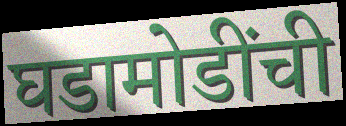
घडामोडींची